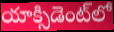
యాక్సిడెంట్‌లో